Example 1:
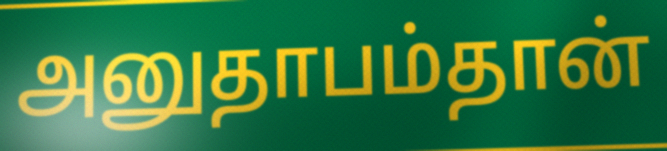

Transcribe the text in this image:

அனுதாபம்தான்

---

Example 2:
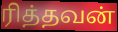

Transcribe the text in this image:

ரித்தவன்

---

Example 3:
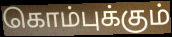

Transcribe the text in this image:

கொம்புக்கும்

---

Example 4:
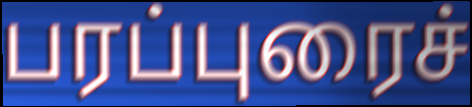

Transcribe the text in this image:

பரப்புரைச்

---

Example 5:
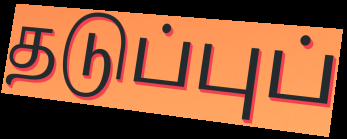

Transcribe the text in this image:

தடுப்புப்